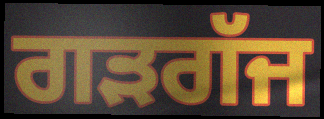
ਗਡ਼ਗੱਜ